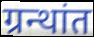
ग्रन्थांत